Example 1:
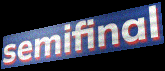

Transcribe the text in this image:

semifinal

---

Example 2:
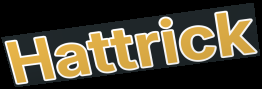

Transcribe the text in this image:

Hattrick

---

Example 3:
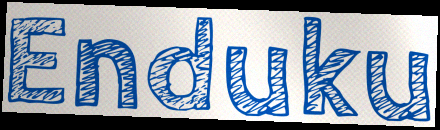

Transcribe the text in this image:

Enduku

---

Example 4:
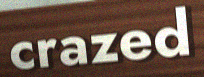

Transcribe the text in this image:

crazed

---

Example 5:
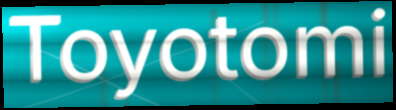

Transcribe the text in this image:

Toyotomi